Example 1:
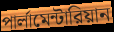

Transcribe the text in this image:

পার্লামেন্টারিয়ান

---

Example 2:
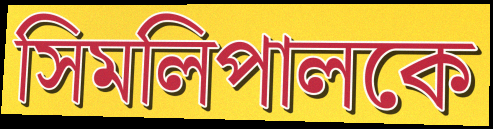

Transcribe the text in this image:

সিমলিপালকে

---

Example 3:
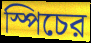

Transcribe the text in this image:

স্পিচের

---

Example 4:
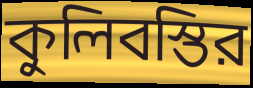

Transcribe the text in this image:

কুলিবস্তির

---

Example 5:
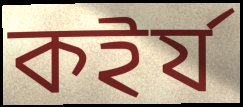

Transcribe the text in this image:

কইর্য